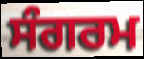
ਸੰਗਰਮ